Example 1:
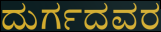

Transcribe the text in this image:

ದುರ್ಗದವರ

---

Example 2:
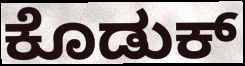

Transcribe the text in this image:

ಕೊಡುಕ್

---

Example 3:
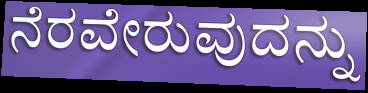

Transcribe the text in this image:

ನೆರವೇರುವುದನ್ನು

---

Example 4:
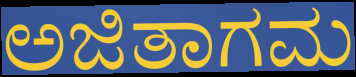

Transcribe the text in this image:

ಅಜಿತಾಗಮ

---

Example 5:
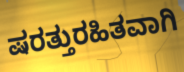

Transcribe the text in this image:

ಷರತ್ತುರಹಿತವಾಗಿ